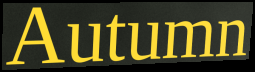
Autumn